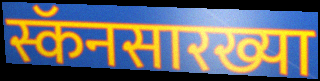
स्कॅनसारख्या